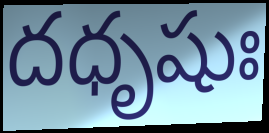
దధృషుః